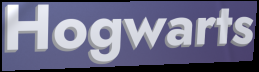
Hogwarts